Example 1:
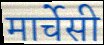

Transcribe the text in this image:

मार्चेसी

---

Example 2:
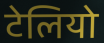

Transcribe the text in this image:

टेलियो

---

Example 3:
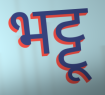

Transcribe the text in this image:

भट्टू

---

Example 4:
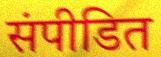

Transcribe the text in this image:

संपीडित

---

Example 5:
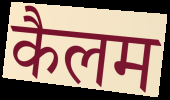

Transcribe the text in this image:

कैलम